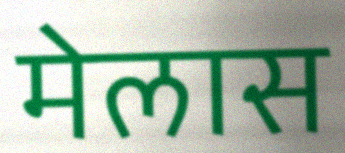
मेलास